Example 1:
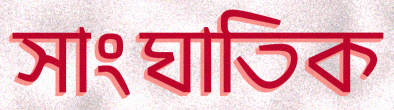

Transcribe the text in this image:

সাংঘাতিক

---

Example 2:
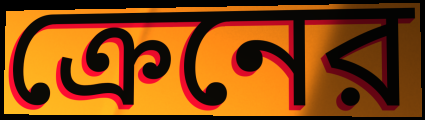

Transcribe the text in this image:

ক্রেনের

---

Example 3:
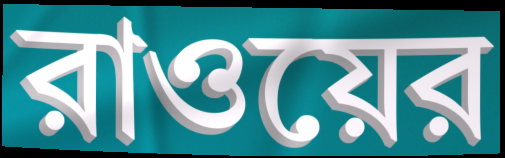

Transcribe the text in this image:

রাওয়ের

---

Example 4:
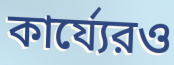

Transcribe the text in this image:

কার্য্যেরও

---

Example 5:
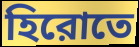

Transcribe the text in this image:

হিরোতে